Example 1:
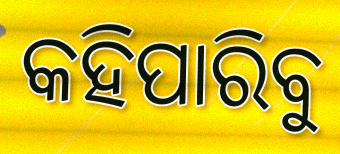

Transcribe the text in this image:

କହିପାରିବୁ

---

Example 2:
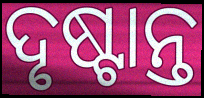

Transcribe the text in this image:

ଦୃଷ୍ଟାନ୍ତ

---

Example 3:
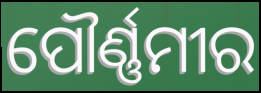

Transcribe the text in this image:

ପୌର୍ଣ୍ଣମୀର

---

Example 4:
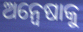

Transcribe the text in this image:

ଅନ୍ୱେଷାକୁ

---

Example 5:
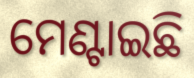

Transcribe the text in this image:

ମେଣ୍ଟାଇଛି